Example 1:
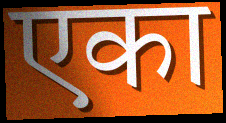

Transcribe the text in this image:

एका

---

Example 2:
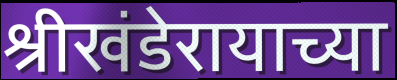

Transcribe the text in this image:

श्रीखंडेरायाच्या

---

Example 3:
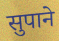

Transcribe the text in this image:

सुपाने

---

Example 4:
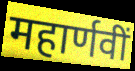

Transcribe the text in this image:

महार्णवीं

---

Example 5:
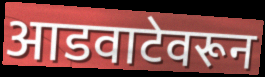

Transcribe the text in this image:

आडवाटेवरून